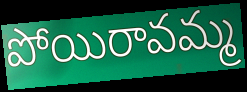
పోయిరావమ్మ